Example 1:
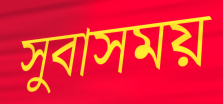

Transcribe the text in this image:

সুবাসময়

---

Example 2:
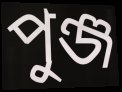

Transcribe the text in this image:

পুঞ্জ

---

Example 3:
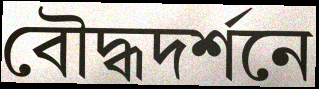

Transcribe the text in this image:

বৌদ্ধদর্শনে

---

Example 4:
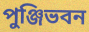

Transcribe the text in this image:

পুঞ্জিভবন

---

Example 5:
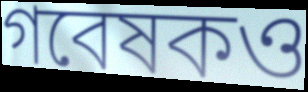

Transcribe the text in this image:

গবেষকও